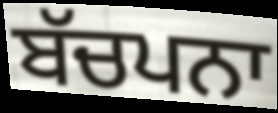
ਬੱਚਪਨਾ